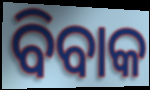
ବିବାକ